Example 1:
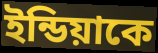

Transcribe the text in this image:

ইন্ডিয়াকে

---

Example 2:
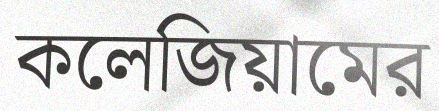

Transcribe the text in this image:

কলেজিয়ামের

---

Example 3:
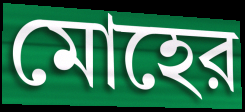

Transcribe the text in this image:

মোহের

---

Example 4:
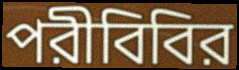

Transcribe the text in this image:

পরীবিবির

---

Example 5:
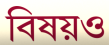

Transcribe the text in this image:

বিষয়ও